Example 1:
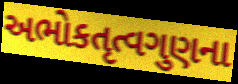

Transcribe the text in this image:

અભોકતૃત્વગુણના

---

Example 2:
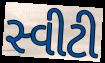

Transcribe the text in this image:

સ્વીટી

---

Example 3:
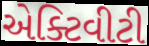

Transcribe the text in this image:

એક્ટિવીટી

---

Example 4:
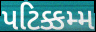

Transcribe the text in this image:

પટિક્કમ્મ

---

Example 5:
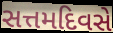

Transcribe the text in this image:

સત્તમદિવસે